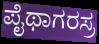
ಪೈಥಾಗರಸ್ರ